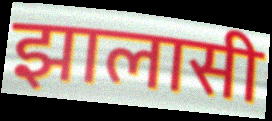
झालासी